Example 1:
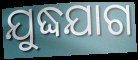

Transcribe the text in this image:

ଯୁଦ୍ଧଯାଗ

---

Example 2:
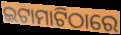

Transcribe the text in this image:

ଇଟାମାଟିଠାରେ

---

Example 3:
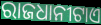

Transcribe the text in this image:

ରାଜଧାନୀଟାଏ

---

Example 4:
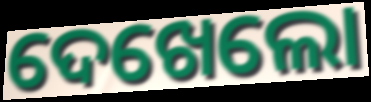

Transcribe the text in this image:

ଦେଖେଲୋ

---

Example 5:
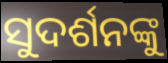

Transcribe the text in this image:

ସୁଦର୍ଶନଙ୍କୁ